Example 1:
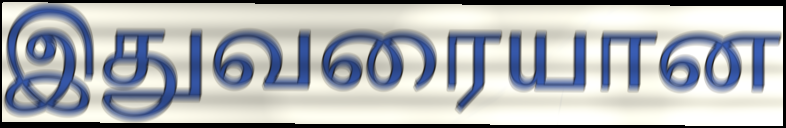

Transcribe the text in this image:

இதுவரையான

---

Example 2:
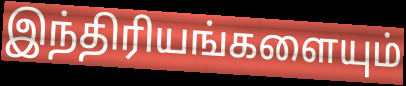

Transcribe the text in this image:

இந்திரியங்களையும்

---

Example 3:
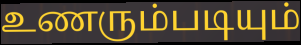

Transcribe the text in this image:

உணரும்படியும்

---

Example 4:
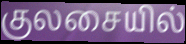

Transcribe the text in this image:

குலசையில்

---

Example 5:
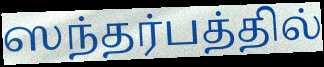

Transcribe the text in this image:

ஸந்தர்பத்தில்